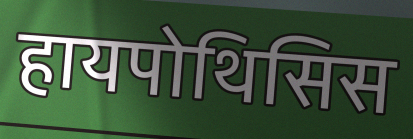
हायपोथिसिस